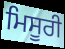
ਮਿਸੂਰੀ